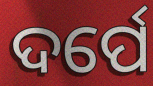
ଦର୍ପେ